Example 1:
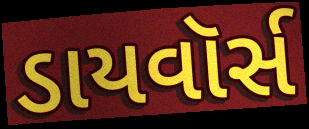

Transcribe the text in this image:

ડાયવૉર્સ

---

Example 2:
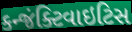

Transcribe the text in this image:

કન્જંક્ટિવાઇટિસ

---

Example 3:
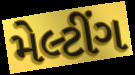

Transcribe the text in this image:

મેલ્ટીંગ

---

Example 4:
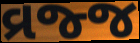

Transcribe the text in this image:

વ્રજ્જ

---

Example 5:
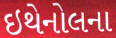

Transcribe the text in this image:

ઇથેનોલના